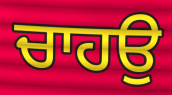
ਚਾਹਉ